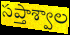
సప్తాశ్వాల